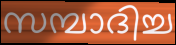
സമ്പാദിച്ച